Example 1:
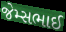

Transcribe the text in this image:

જેમ્સભાઈ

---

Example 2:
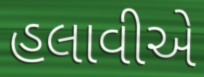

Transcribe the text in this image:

હલાવીએ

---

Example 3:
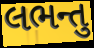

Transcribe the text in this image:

લભન્તુ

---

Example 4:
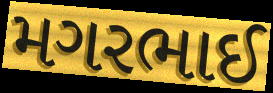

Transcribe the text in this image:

મગરભાઈ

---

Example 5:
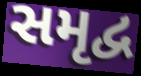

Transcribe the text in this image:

સમૃદ્વ